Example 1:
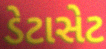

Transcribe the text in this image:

ડેટાસેટ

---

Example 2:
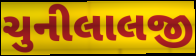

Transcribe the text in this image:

ચુનીલાલજી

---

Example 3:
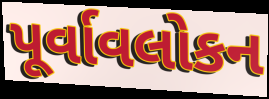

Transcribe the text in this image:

પૂર્વાવલોકન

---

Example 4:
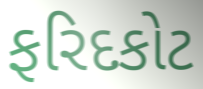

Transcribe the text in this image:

ફરિદકોટ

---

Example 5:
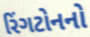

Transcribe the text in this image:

રિંગટોનનો